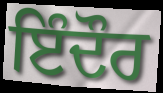
ਇੰਦੌਰ